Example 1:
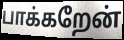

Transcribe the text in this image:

பாக்கறேன்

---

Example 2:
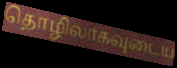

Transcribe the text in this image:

தொழிலாகவுடைய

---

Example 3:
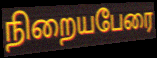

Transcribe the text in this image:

நிறையபேரை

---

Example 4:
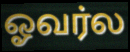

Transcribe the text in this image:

ஓவர்ல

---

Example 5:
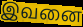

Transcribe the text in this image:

இவனை